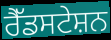
ਰੈੱਡਸਟੇਸ਼ਨ